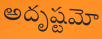
అదృష్టమో